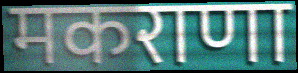
मकराणा